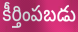
కీర్తింపబడు